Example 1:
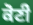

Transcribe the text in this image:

ਕੋਣੀ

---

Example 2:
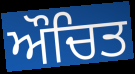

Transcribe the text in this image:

ਔਚਿਤ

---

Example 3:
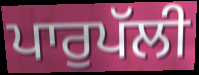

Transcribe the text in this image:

ਪਾਰੁਪੱਲੀ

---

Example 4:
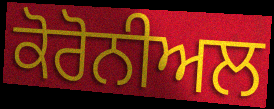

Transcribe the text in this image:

ਕੋਰੋਨੀਅਲ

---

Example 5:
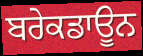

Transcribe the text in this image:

ਬਰੇਕਡਾਊਨ